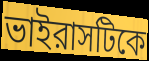
ভাইরাসটিকে